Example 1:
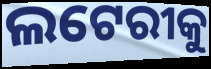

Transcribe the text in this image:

ଲଟେରୀକୁ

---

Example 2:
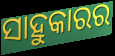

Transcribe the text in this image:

ସାହୁକାରର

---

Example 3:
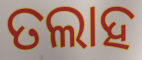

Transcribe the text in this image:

ତଲାହ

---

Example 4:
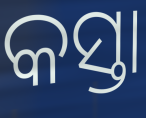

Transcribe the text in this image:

କସ୍ତା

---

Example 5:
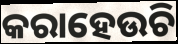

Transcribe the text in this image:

କରାହେଉଚି